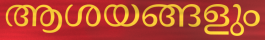
ആശയങ്ങളും